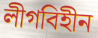
লীগবিহীন